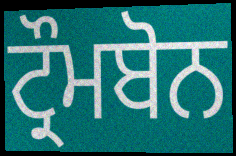
ਟ੍ਰੌਮਬੋਨ